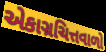
એકાગ્રચિત્તવાળો